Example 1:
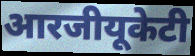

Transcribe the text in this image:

आरजीयूकेटी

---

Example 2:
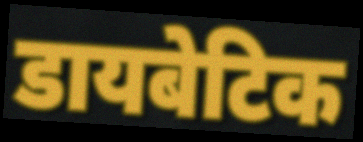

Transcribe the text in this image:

डायबेटिक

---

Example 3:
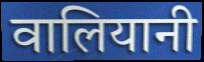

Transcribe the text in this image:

वालियानी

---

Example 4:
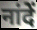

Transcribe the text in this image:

नांदें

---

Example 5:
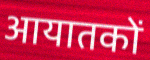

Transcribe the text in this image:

आयातकों